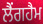
ਲੈਂਗਹੈਮ